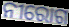
ନୀରୋଗ